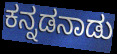
ಕನ್ನಡನಾಡು